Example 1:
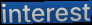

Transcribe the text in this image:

interest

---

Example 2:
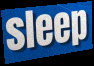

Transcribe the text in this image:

sleep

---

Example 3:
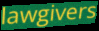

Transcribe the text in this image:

lawgivers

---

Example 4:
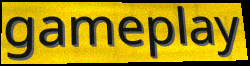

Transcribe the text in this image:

gameplay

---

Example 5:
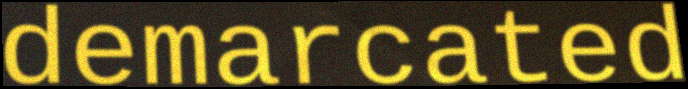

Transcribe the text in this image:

demarcated